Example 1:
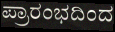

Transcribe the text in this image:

ಪ್ರಾರಂಭದಿಂದ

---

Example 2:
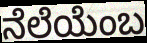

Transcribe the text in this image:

ನೆಲೆಯೆಂಬ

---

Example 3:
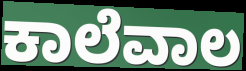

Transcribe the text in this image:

ಕಾಲೆವಾಲ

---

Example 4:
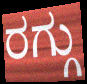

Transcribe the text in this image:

ರಗ್ಗು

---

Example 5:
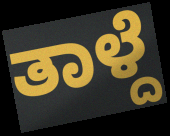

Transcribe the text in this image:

ತಾಳ್ದೆ